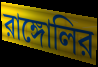
রাঙ্গোলির